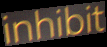
inhibit